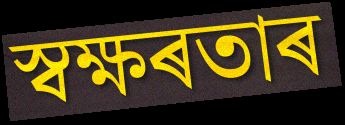
স্বক্ষৰতাৰ